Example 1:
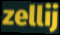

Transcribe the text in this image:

zellij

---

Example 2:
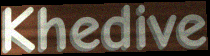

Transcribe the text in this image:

Khedive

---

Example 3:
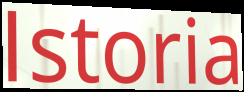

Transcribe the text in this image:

Istoria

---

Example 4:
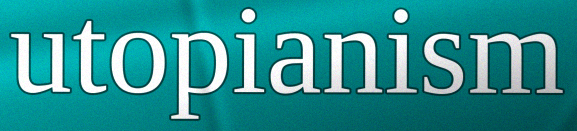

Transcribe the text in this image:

utopianism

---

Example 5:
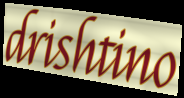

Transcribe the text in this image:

drishtino